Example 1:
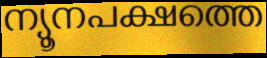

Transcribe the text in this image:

ന്യൂനപക്ഷത്തെ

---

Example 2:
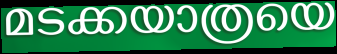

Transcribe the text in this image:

മടക്കയാത്രയെ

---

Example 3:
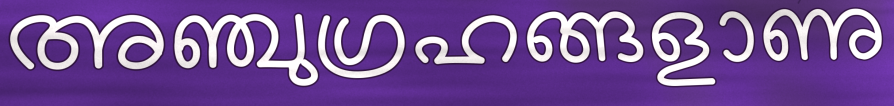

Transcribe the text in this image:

അഞ്ചുഗ്രഹങ്ങളാണു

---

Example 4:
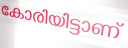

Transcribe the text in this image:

കോരിയിട്ടാണ്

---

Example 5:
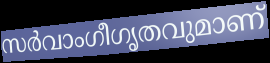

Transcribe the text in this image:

സർവാംഗീഗൃതവുമാണ്